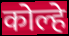
कोल्हे